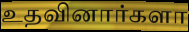
உதவினார்களா